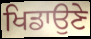
ਖਿਡਾਉਣੇ